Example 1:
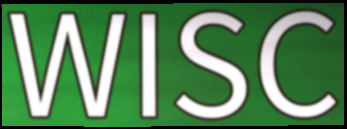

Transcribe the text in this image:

WISC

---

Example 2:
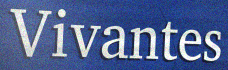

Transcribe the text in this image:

Vivantes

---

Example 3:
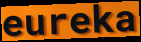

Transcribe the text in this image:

eureka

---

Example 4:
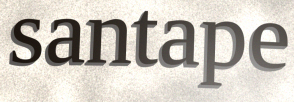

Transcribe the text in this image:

santape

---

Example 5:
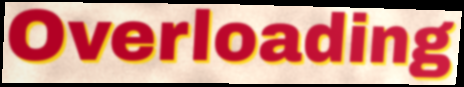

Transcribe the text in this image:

Overloading